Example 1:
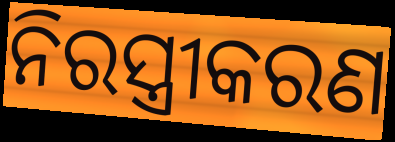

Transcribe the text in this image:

ନିରସ୍ତ୍ରୀକରଣ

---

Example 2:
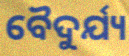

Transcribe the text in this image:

ବୈଦୁର୍ଯ୍ୟ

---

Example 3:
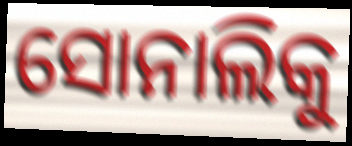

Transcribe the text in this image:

ସୋନାଲିକୁ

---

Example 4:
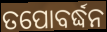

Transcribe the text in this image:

ତପୋବର୍ଦ୍ଧନ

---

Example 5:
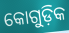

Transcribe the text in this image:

କୋଗୁଡ଼ିକ